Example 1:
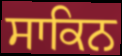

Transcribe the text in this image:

ਸਾਕਿਨ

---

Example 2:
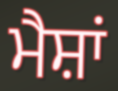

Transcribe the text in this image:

ਮੈਸ਼ਾਂ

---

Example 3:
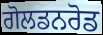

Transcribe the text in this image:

ਗੋਲਡਨਰੋਡ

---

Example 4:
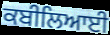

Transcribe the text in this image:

ਕਬੀਲਿਆਈ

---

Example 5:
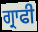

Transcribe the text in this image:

ਗ੍ਰਾਫੀ